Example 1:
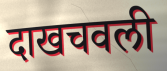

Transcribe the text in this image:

दाखचवली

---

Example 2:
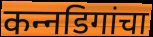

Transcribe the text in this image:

कन्नडिगांचा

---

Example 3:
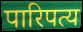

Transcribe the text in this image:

पारिपत्य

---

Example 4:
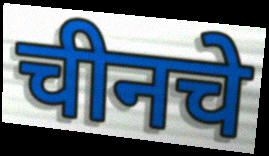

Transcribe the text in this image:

चीनचे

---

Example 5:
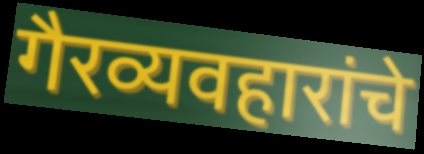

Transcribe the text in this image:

गैरव्यवहारांचे